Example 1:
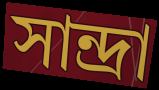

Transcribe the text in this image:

সান্দ্রা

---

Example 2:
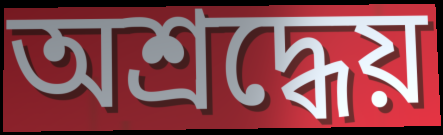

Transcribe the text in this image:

অশ্রদ্ধেয়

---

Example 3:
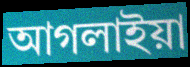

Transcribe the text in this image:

আগলাইয়া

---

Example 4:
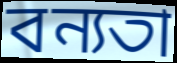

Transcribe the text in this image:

বন্যতা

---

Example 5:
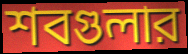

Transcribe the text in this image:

শবগুলার